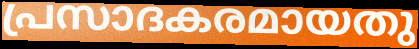
പ്രസാദകരമായതു